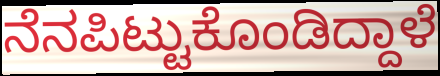
ನೆನಪಿಟ್ಟುಕೊಂಡಿದ್ದಾಳೆ